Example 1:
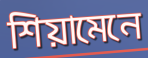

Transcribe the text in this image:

শিয়ামেনে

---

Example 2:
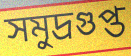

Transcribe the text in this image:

সমুদ্রগুপ্ত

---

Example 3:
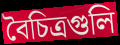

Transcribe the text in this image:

বৈচিত্রগুলি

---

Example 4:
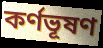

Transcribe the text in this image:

কর্ণভূষণ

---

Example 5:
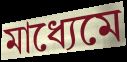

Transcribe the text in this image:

মাধ্যেমে